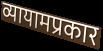
व्यायामप्रकार